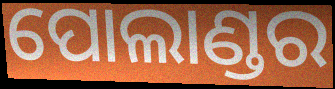
ପୋଲାଣ୍ଡର